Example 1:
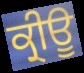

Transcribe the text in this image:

ਕ੍ਰੀਊ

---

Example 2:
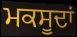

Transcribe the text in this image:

ਮਕਸੂਦਾਂ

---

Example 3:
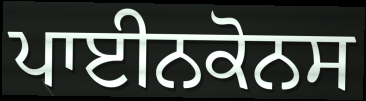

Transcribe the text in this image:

ਪਾਈਨਕੋਨਸ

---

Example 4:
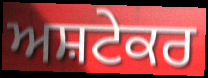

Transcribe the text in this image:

ਅਸ਼ਟੇਕਰ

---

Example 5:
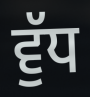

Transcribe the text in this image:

ਵੁੱਧ